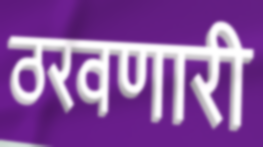
ठरवणारी